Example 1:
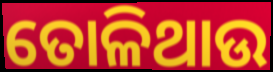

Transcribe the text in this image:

ତୋଳିଥାଉ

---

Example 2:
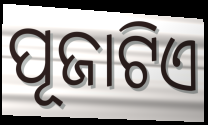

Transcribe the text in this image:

ପୂଜାଟିଏ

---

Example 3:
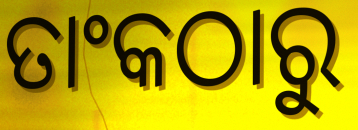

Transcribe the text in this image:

ତାଂକଠାରୁ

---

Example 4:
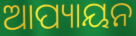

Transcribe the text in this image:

ଆପ୍ୟାୟନ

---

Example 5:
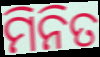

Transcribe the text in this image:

ମିନିତ